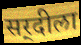
सर्दीला